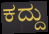
ಕದ್ದು